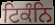
ਟਿਕੰਨਿ